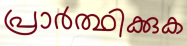
പ്രാർത്ഥിക്കുക